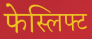
फेस्लिफ्ट